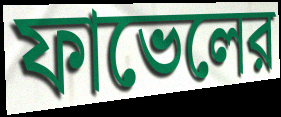
ফাভেলের